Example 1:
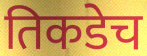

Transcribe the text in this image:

तिकडेच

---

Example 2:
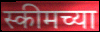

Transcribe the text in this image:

स्कीमच्या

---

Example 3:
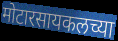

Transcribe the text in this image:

मोटारसायकलच्या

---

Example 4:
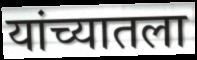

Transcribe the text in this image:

यांच्यातला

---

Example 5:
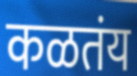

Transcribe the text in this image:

कळतंय